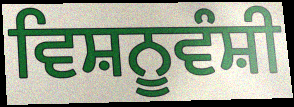
ਵਿਸ਼ਨੂਵੰਸ਼ੀ